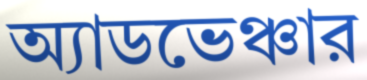
অ্যাডভেঞ্চার